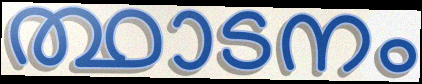
ത്ഥാടനം